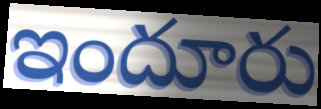
ఇందూరు